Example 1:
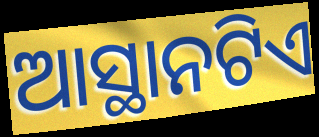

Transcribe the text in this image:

ଆସ୍ଥାନଟିଏ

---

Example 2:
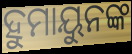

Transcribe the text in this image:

ହୁମାୟୁନଙ୍କ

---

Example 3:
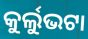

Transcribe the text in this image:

କୁର୍ଲୁଭଟା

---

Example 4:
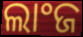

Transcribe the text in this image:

ଲାଂଜ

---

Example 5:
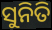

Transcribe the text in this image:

ସୁନିତି